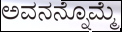
ಅವನನ್ನೊಮ್ಮೆ